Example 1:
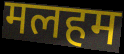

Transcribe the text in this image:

मलहम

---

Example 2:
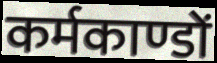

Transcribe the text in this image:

कर्मकाण्डों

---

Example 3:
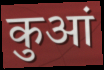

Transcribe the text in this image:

कुआं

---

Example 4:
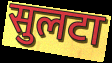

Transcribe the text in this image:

सुलटा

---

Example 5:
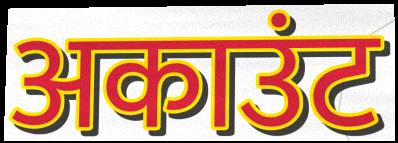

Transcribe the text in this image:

अकाउंट